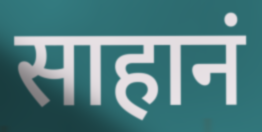
साहानं